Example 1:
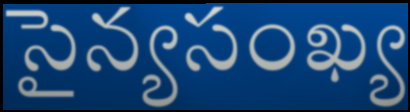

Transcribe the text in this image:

సైన్యసంఖ్య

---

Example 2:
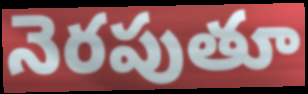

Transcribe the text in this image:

నెరపుతూ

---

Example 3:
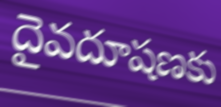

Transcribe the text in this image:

దైవదూషణకు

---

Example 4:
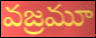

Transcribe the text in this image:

వజ్రమూ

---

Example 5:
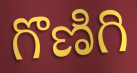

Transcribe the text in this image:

గొణిగి